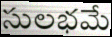
సులభమే